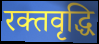
रक्तवृद्धि